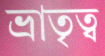
ভ্রাতৃত্ব